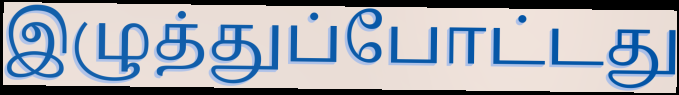
இழுத்துப்போட்டது